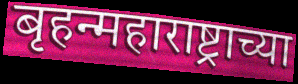
बृहन्महाराष्ट्राच्या